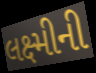
લક્ષ્મીની